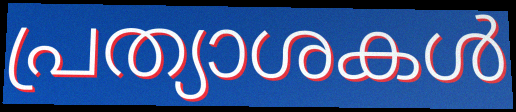
പ്രത്യാശകൾ